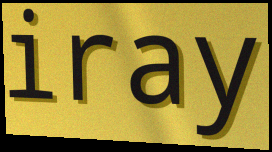
iray